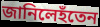
জানিলেহঁতেন